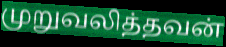
முறுவலித்தவன்